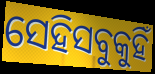
ସେହିସବୁକୁହିଁ